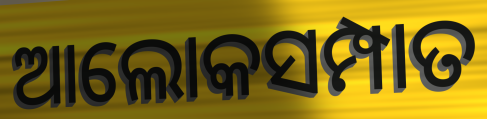
ଆଲୋକସମ୍ପାତ